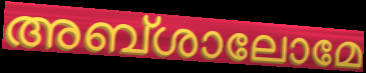
അബ്ശാലോമേ